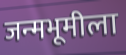
जन्मभूमीला